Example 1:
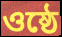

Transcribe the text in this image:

ওষ্ঠে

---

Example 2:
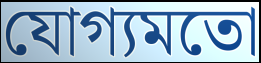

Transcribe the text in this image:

যোগ্যমতো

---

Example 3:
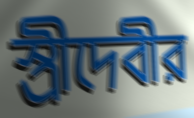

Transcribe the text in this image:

স্ত্রীদেবীর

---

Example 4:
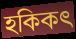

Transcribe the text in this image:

হকিকৎ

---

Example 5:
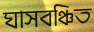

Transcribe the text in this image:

ঘাসবঞ্চিত